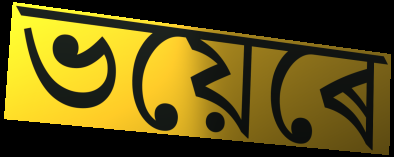
ভয়েৰে